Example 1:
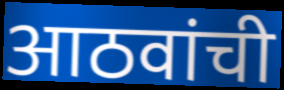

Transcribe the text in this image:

आठवांची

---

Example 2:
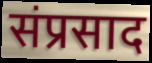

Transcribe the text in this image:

संप्रसाद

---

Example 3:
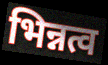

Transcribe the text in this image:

भिन्नत्व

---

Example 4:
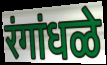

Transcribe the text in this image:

रंगांधळे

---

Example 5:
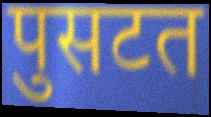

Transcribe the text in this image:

पुसटत